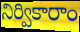
నిర్వికారాం